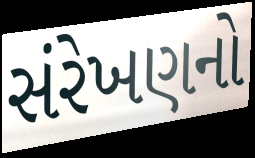
સંરેખણનો